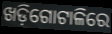
ଖଡ଼ିଗୋଟାଳିରେ